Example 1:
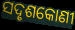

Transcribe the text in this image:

ସଦୃଶକୋଣୀ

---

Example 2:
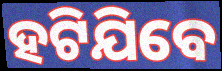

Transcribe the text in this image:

ହଟିଯିବେ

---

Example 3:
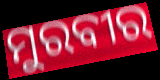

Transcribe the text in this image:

ମୁରବୀର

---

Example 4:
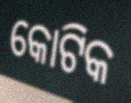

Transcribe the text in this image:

କୋଟିକ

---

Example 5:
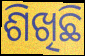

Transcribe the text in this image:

ଶିଖିଛି